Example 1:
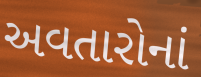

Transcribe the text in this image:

અવતારોનાં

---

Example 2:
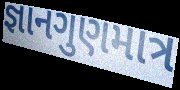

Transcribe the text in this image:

જ્ઞાનગુણમાત્ર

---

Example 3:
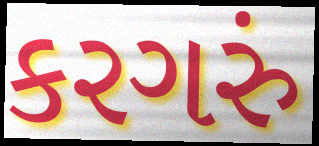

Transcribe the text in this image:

કરગરું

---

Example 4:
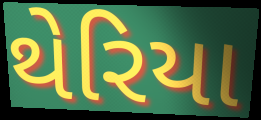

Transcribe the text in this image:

થેરિયા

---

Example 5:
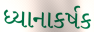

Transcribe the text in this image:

ધ્યાનાકર્ષક